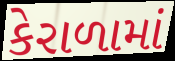
કેરાળામાં